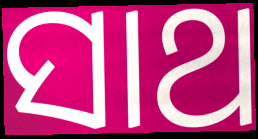
ସାଥ